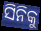
ସିନିକୁ